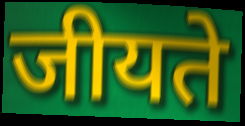
जीयते